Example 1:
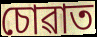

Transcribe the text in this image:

চোৱাত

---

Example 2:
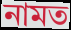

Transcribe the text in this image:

নামত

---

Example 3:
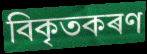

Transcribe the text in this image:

বিকৃতকৰণ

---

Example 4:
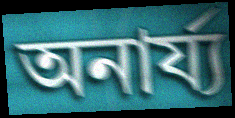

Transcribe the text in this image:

অনাৰ্য্য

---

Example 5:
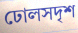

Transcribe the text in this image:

ঢোলসদৃশ